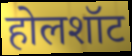
होलशॉट